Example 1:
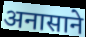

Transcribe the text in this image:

अनासाने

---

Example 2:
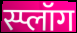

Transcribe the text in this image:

स्प्लॉग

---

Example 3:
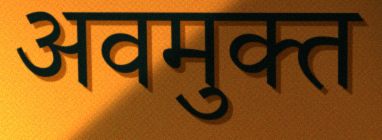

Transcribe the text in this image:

अवमुक्त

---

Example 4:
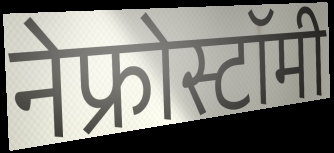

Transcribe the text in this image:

नेफ्रोस्टॉमी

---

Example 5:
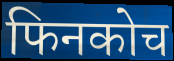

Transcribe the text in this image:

फिनकोच